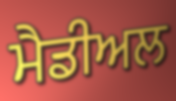
ਮੈਡੀਅਲ